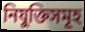
নিযুক্তিসমূহ